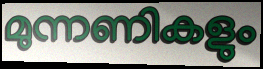
മുന്നണികളും